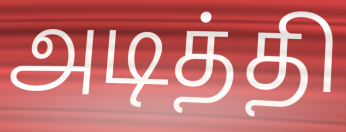
அடித்தி